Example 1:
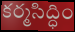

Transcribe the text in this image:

కర్మసిద్ధిం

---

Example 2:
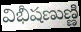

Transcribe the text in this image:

విభీషణుణ్ణి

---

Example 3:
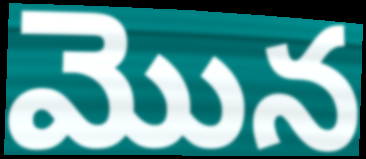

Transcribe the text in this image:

మొన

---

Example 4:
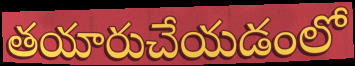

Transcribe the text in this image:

తయారుచేయడంలో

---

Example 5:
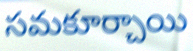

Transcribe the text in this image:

సమకూర్చాయి